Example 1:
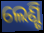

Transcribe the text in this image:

ଲେଣ୍ଡି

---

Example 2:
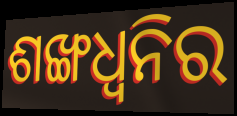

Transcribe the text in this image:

ଶଙ୍ଖଧ୍ବନିର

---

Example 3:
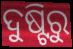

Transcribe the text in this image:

ଦୁଷ୍ଟିରୁ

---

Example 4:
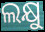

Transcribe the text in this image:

ଲକ୍ଷୁ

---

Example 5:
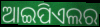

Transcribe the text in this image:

ଆଇପିଏଲର